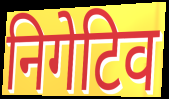
निगेटिव